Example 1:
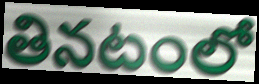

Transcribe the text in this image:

తినటంలో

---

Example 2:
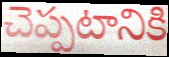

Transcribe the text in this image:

చెప్పటానికి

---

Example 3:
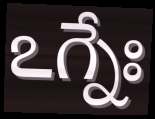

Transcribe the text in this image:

ఽగ్నేః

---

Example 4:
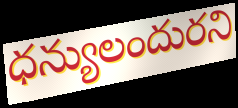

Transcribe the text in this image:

ధన్యులందురని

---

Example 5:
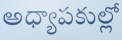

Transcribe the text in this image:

అధ్యాపకుల్లో